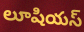
లూషియస్